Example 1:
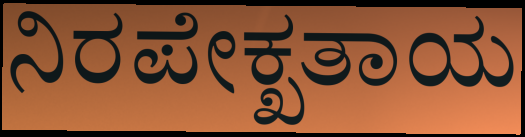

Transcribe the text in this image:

ನಿರಪೇಕ್ಖತಾಯ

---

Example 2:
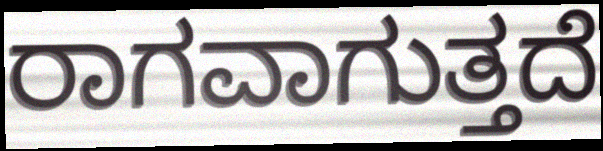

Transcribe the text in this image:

ರಾಗವಾಗುತ್ತದೆ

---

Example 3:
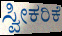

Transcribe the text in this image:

ಸ್ವೀಕರಿಕೆ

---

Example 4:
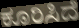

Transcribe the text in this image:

ಕೂರಿಸಿದೆ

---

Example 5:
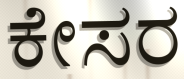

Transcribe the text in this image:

ಕೇಸರ